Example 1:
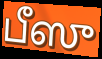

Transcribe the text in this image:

பீஸு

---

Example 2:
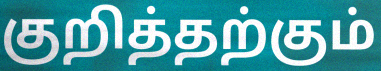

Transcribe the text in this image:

குறித்தற்கும்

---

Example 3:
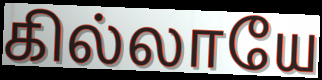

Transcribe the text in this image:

கில்லாயே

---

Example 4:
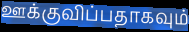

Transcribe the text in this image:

ஊக்குவிப்பதாகவும்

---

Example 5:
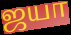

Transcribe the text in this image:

ஜயா